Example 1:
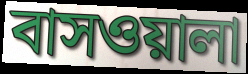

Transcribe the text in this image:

বাসওয়ালা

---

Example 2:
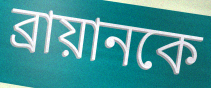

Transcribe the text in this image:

ব্রায়ানকে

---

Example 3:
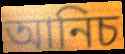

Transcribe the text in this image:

আনিচ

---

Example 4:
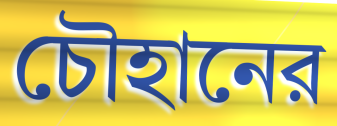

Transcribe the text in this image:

চৌহানের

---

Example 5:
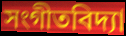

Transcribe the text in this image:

সংগীতবিদ্যা